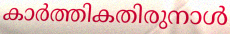
കാർത്തികതിരുനാൾ